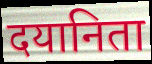
दयानिता